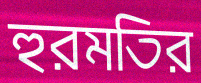
হুরমতির